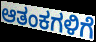
ಆತಂಕಗಳಿಗೆ